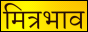
मित्रभाव